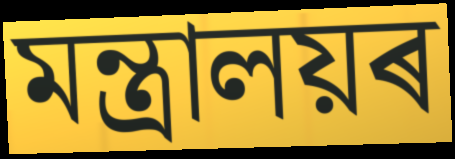
মন্ত্ৰালয়ৰ